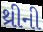
થ્રીની